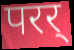
परर्